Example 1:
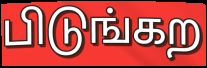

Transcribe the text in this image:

பிடுங்கற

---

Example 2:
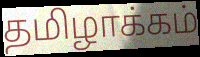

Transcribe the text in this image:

தமிழாக்கம்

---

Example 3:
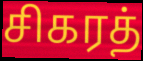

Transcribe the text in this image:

சிகரத்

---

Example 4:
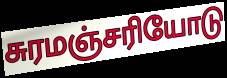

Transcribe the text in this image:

சுரமஞ்சரியோடு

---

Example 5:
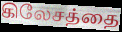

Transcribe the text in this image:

கிலேசத்தை